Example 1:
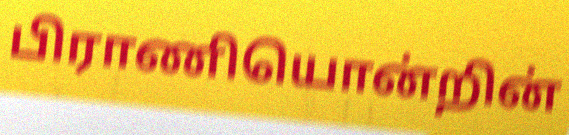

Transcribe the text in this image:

பிராணியொன்றின்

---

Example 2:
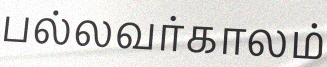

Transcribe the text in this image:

பல்லவர்காலம்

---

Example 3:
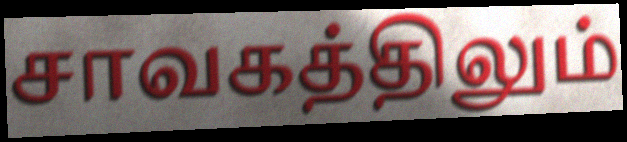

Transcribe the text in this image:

சாவகத்திலும்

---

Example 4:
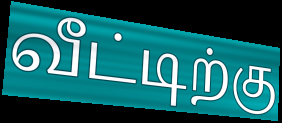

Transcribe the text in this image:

வீட்டிற்கு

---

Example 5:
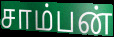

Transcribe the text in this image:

சாம்பன்